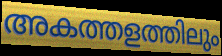
അകത്തളത്തിലും